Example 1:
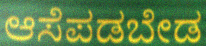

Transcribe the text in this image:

ಆಸೆಪಡಬೇಡ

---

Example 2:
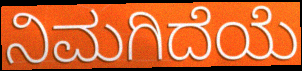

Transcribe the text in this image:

ನಿಮಗಿದೆಯೆ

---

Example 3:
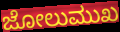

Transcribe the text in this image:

ಜೋಲುಮುಖ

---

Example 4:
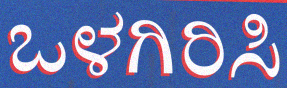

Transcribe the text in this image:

ಒಳಗಿರಿಸಿ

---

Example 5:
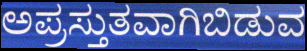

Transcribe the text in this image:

ಅಪ್ರಸ್ತುತವಾಗಿಬಿಡುವ